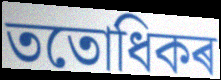
ততোধিকৰ